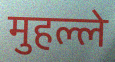
मुहल्ले